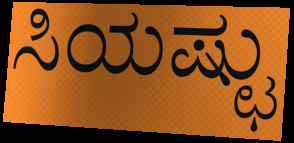
ಸಿಯಷ್ಟು